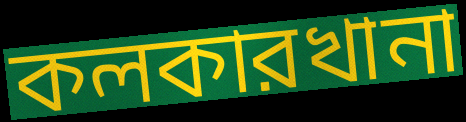
কলকারখানা